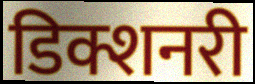
डिक्शनरी